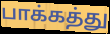
பாக்கத்து